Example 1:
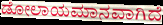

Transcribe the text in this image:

ಡೋಲಾಯಮಾನವಾಗಿದೆ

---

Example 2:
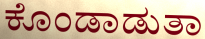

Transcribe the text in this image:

ಕೊಂಡಾಡುತಾ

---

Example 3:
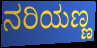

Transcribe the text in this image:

ನರಿಯಣ್ಣ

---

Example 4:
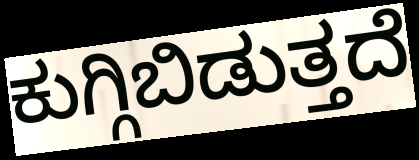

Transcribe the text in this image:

ಕುಗ್ಗಿಬಿಡುತ್ತದೆ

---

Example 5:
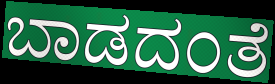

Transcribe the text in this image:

ಬಾಡದಂತೆ